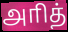
அரித்